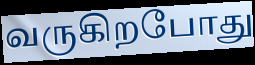
வருகிறபோது